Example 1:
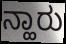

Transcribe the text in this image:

ನ್ಹಾರು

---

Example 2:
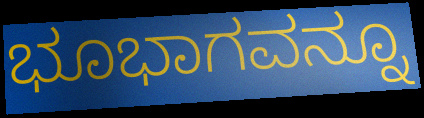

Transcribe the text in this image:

ಭೂಭಾಗವನ್ನೂ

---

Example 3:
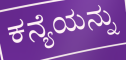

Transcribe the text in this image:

ಕನ್ಯೆಯನ್ನು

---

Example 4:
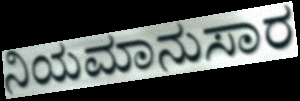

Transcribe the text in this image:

ನಿಯಮಾನುಸಾರ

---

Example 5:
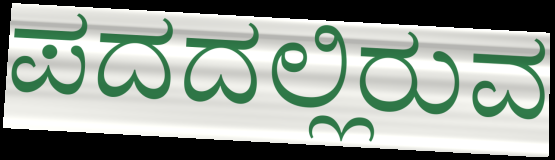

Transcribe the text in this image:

ಪದದಲ್ಲಿರುವ